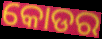
କୋଡର